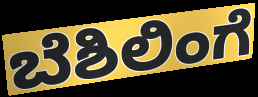
ಬೆಶಿಲಿಂಗೆ